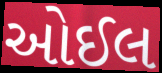
ઓઈલ